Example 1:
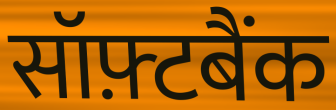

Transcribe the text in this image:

सॉफ़्टबैंक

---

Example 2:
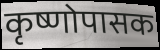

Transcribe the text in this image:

कृष्णोपासक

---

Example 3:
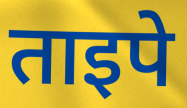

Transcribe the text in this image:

ताइपे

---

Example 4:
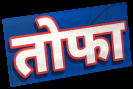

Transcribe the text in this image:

तोफा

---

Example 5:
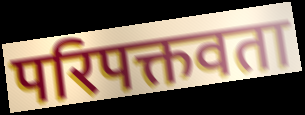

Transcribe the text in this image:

परिपक्तवता